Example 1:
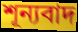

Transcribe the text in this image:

শূন্যবাদ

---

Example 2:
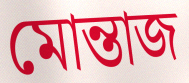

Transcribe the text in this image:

মোন্তাজ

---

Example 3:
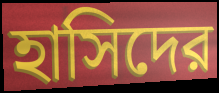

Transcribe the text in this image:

হাসিদের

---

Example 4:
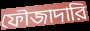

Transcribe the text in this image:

ফৌজাদারি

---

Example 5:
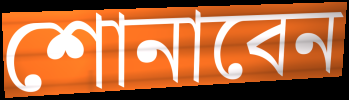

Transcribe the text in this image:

শোনাবেন